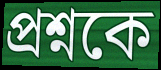
প্রশ্নকে